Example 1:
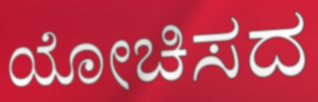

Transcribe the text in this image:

ಯೋಚಿಸದ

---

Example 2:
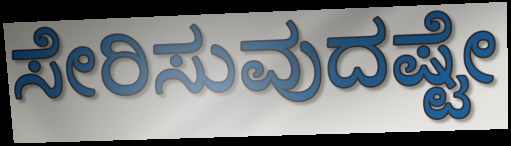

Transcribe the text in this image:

ಸೇರಿಸುವುದಷ್ಟೇ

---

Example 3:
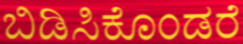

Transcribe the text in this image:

ಬಿಡಿಸಿಕೊಂಡರೆ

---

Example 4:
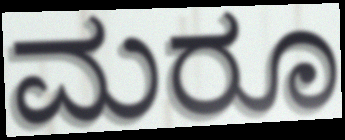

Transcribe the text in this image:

ಮರೂ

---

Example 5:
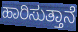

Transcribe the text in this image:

ಹಾರಿಸುತ್ತಾನೆ